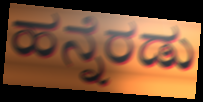
ಹನ್ನೆರಡು